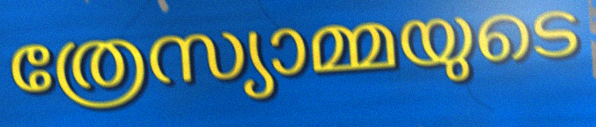
ത്രേസ്യാമ്മയുടെ